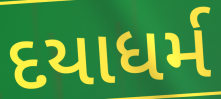
દયાધર્મ